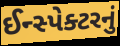
ઈન્સ્પેક્ટરનું